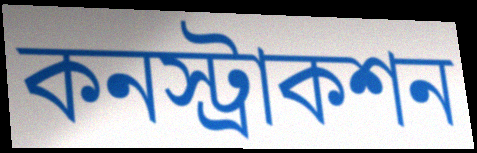
কনস্ট্রাকশন